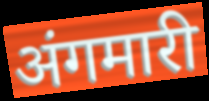
अंगमारी